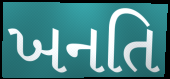
ખનતિ